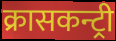
क्रासकन्ट्री